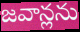
జవాన్లను